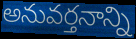
అనువర్తనాన్ని